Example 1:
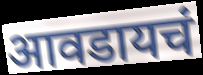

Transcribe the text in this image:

आवडायचं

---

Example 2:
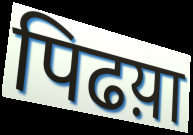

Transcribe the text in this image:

पिढय़ा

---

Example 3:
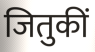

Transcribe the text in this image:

जितुकीं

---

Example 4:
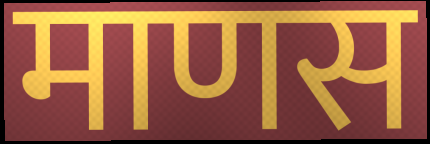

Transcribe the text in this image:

माणस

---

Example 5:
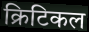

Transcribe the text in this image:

क्रिटिकल